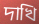
দাখি